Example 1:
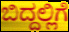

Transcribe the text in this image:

ಬಿದ್ದಲ್ಲಿಗೆ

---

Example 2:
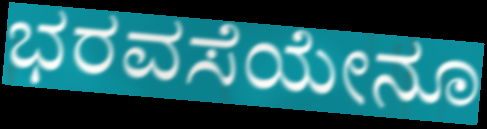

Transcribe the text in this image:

ಭರವಸೆಯೇನೂ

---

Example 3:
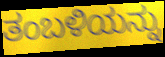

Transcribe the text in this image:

ತಂಬಳಿಯನ್ನು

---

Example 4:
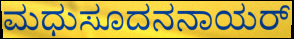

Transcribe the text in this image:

ಮಧುಸೂದನನಾಯರ್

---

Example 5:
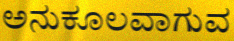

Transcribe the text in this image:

ಅನುಕೂಲವಾಗುವ